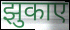
झुकाए